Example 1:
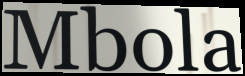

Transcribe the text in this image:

Mbola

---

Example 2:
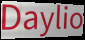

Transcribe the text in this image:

Daylio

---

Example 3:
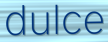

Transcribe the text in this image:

dulce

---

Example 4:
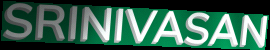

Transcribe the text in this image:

SRINIVASAN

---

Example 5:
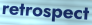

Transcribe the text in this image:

retrospect